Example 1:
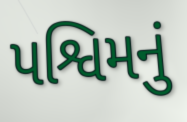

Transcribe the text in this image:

પશ્વિમનું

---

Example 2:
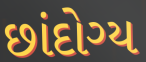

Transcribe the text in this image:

છાંદોગ્ય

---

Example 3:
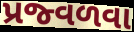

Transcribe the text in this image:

પ્રજ્વળવા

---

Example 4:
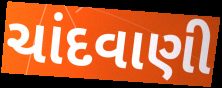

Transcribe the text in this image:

ચાંદવાણી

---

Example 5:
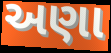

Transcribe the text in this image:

અણા